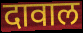
दावाल